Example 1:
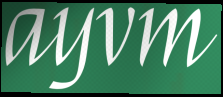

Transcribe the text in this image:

ayvm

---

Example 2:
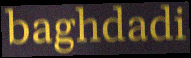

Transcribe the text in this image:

baghdadi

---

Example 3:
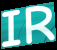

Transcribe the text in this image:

IR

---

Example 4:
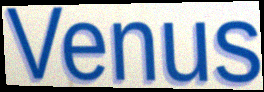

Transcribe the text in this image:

Venus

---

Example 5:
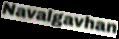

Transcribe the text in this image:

Navalgavhan